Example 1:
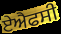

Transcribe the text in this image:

ਏਐਫਸੀ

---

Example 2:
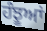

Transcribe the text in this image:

ਹੰਝੂਆਂ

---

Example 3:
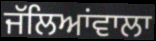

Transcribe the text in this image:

ਜੱਲਿਆਂਵਾਲਾ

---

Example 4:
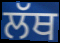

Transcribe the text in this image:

ਲੱਥ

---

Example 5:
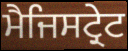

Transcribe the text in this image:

ਮੈਜਿਸਟ੍ਰੇਟ